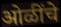
ओळींचे